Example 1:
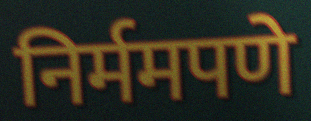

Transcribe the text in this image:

निर्ममपणे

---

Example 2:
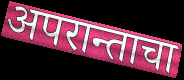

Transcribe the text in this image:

अपरान्ताचा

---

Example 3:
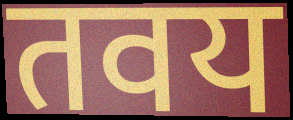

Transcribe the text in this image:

तवय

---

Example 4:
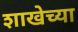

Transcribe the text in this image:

शाखेच्या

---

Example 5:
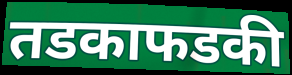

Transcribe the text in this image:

तडकाफडकी